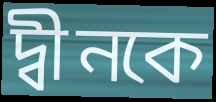
দ্বীনকে